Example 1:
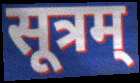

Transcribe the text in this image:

सूत्रम्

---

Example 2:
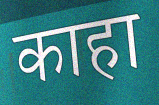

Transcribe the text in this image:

काहा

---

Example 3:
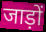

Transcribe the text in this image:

जाड़ों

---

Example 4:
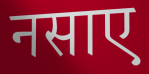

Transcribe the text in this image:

नसाए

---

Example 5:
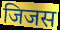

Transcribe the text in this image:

जिजस